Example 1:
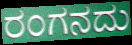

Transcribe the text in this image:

ರಂಗನದು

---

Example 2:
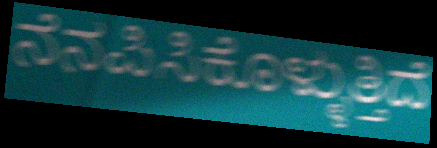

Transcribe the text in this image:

ನೆನಪಿಸಿಕೊಳ್ಳುತ್ತಿದೆ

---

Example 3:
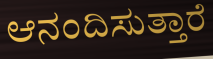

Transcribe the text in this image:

ಆನಂದಿಸುತ್ತಾರೆ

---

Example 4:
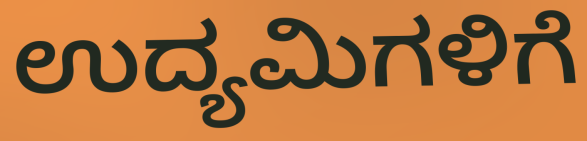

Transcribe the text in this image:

ಉದ್ಯಮಿಗಳಿಗೆ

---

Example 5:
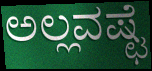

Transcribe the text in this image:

ಅಲ್ಲವಷ್ಟೆ